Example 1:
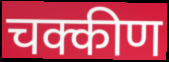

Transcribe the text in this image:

चक्कीण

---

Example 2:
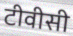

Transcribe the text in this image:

टीवीसी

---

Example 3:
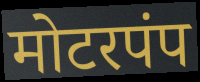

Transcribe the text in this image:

मोटरपंप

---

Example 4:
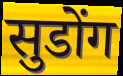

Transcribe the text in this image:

सुडोंग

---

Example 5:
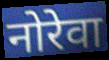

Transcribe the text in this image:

नोरेवा